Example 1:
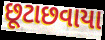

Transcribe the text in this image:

છૂટાછવાયા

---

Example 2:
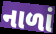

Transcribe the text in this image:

નાળાં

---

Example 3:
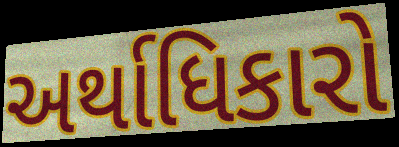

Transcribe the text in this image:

અર્થાધિકારો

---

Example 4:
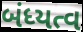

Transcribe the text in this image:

બંધ્યત્વ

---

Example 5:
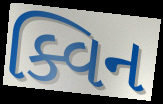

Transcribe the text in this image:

ક્વિન